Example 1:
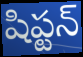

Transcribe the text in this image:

షిప్టన్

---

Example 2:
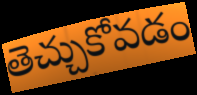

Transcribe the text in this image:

తెచ్చుకోవడం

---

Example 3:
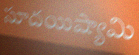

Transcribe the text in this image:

సూదయిష్యామి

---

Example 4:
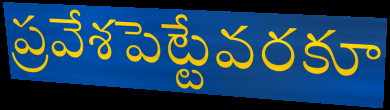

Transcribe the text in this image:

ప్రవేశపెట్టేవరకూ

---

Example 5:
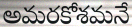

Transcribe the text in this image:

అమరకోశమనే